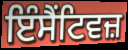
ਇੰਸੈਂਟਿਵਜ਼